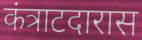
कंत्राटदारास